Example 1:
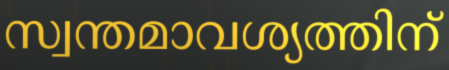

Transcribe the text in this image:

സ്വന്തമാവശ്യത്തിന്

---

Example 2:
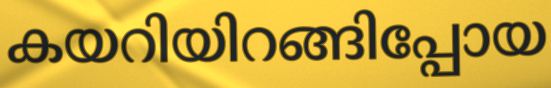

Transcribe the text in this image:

കയറിയിറങ്ങിപ്പോയ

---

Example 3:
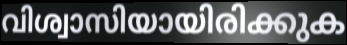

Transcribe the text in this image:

വിശ്വാസിയായിരിക്കുക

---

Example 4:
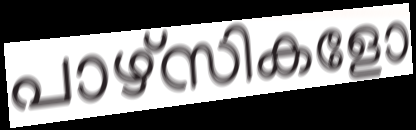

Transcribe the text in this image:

പാഴ്സികളോ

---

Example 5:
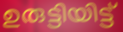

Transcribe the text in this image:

ഉരുട്ടിയിട്ട്